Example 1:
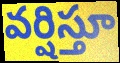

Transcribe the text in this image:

వర్షిస్తూ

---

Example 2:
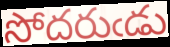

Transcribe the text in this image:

సోదరుఁడు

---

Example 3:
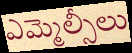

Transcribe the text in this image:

ఎమ్మెల్సీలు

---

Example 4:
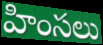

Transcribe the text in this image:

హింసలు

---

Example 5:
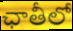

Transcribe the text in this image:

ఛాతీలో